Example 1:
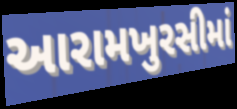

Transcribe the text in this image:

આરામખુરસીમાં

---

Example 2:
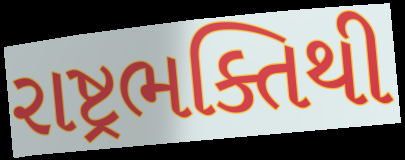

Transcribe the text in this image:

રાષ્ટ્રભક્તિથી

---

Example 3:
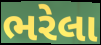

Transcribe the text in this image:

ભરેલા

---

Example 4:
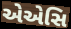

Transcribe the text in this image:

એએસિ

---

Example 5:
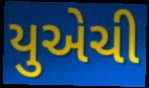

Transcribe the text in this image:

યુએચી